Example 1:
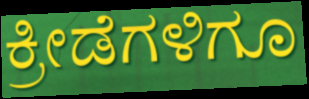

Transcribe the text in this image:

ಕ್ರೀಡೆಗಳಿಗೂ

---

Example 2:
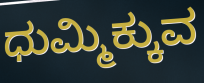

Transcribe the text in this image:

ಧುಮ್ಮಿಕ್ಕುವ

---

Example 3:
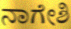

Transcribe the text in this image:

ನಾಗೇಶಿ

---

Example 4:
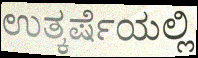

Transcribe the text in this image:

ಉತ್ಕರ್ಷೆಯಲ್ಲಿ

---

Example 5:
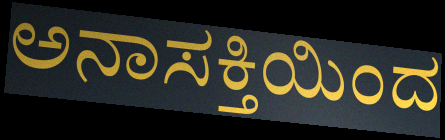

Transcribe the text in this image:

ಅನಾಸಕ್ತಿಯಿಂದ